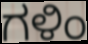
ಗಳಿಂ